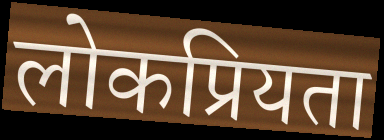
लोकप्रियता